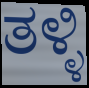
ತಳ್ಳಿ